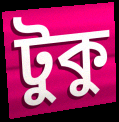
টুকু